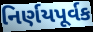
નિર્ણયપૂર્વક